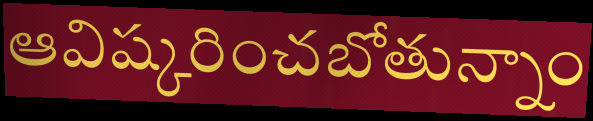
ఆవిష్కరించబోతున్నాం